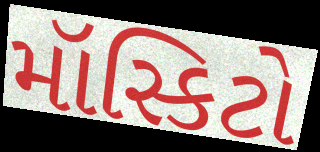
મૉસ્કિટો